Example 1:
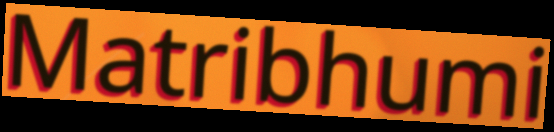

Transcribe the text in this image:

Matribhumi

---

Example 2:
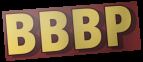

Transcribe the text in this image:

BBBP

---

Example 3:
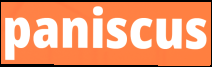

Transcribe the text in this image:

paniscus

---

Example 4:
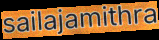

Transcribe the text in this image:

sailajamithra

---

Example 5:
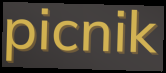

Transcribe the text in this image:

picnik